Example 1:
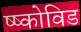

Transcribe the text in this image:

ष्ष्कोविड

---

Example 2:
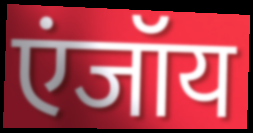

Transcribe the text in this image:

एंजॉय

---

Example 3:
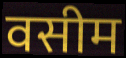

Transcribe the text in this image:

वसीम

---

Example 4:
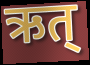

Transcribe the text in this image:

ऋत्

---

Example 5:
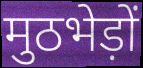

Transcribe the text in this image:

मुठभेड़ों